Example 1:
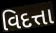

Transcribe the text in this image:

વિદત્તા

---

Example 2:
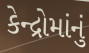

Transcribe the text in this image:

કેન્દ્રોમાંનું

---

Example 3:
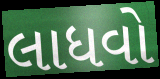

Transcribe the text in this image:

લાધવો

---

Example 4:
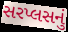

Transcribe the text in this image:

સરપ્લસનું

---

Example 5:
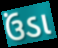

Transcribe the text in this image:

ઉંડા